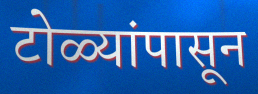
टोळ्यांपासून